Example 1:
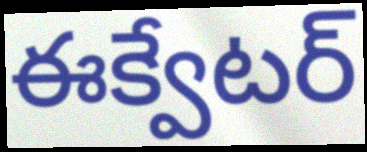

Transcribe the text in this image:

ఈక్వేటర్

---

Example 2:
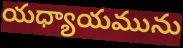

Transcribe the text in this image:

యధ్యాయమును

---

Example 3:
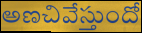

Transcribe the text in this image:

అణచివేస్తుందో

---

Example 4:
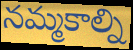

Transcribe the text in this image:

నమ్మకాల్ని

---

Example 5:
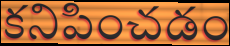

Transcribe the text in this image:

కనిపించడం